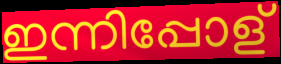
ഇന്നിപ്പോള്